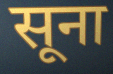
सूना